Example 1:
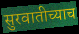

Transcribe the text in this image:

सुरवातीच्याच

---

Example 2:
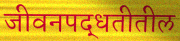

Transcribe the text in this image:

जीवनपद्धतीतील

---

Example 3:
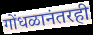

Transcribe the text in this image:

गोंधळानंतरही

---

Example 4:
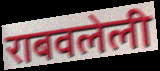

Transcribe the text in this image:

राबवलेली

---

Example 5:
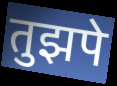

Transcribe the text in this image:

तुझपे